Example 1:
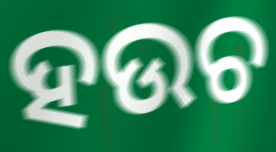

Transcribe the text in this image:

ହଉଚ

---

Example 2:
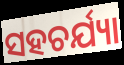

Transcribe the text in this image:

ସହଚର୍ଯ୍ୟା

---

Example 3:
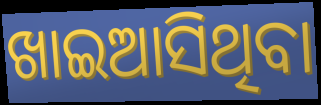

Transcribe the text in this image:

ଖାଇଆସିଥିବା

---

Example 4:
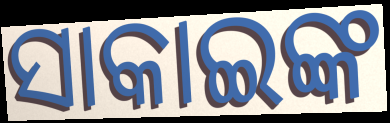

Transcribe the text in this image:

ସାକାଇଙ୍କ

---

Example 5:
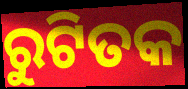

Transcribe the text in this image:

ରୁଟିତକ